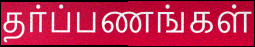
தர்ப்பணங்கள்